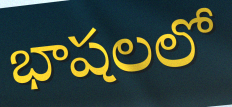
భాషలలో